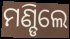
ମଣ୍ଡିଲେ